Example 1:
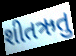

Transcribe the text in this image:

શીતઋતુ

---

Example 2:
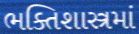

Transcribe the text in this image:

ભક્તિશાસ્ત્રમાં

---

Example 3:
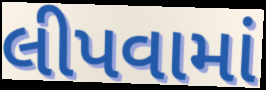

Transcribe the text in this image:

લીપવામાં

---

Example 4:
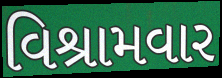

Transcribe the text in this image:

વિશ્રામવાર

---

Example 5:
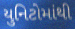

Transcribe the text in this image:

યુનિટોમાંથી